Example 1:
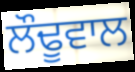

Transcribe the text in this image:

ਲੌਢੂਵਾਲ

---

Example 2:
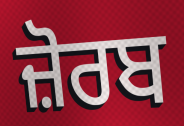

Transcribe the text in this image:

ਜ਼ੋਰਬ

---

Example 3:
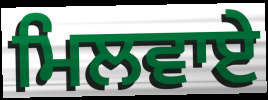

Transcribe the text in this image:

ਮਿਲਵਾਏ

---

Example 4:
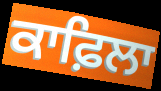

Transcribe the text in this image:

ਕਾਫ਼ਿਲਾ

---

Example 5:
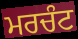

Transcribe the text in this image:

ਮਰਚੰਟ